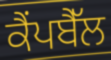
ਕੈਂਪਬੈੱਲ